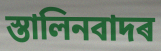
স্তালিনবাদৰ